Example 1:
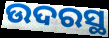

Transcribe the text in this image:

ଉଦରସ୍ଥ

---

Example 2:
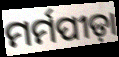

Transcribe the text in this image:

ମର୍ମପୀଡ଼ା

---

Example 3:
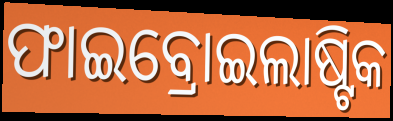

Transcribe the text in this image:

ଫାଇବ୍ରୋଇଲାଷ୍ଟିକ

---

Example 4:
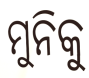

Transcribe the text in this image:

ମୁନିକୁ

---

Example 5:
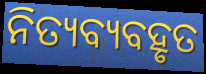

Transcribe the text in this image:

ନିତ୍ୟବ୍ୟବହୃତ